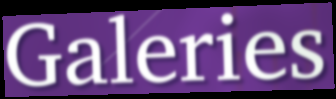
Galeries